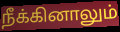
நீக்கினாலும்